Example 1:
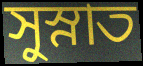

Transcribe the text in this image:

সুস্নাত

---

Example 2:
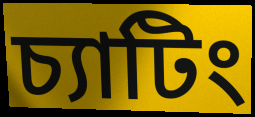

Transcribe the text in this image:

চ্যাটিং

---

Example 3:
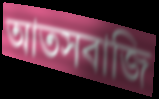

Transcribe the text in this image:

আতসবাজি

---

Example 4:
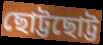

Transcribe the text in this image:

ছোট্টছোট্ট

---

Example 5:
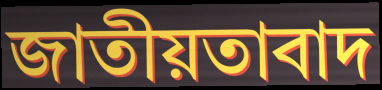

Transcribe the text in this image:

জাতীয়তাবাদ